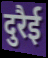
दुरैई